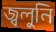
জ্বলুনি